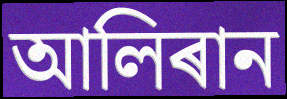
আলিৰান